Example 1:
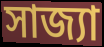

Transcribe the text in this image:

সাজ্যা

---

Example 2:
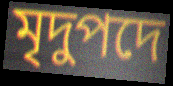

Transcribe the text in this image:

মৃদুপদে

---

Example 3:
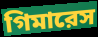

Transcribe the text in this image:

গিমারেস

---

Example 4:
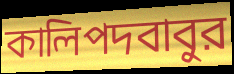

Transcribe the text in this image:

কালিপদবাবুর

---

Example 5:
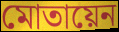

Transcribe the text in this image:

মোতায়েন